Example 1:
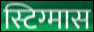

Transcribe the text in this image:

स्टिग्मास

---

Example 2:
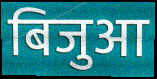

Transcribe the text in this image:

बिजुआ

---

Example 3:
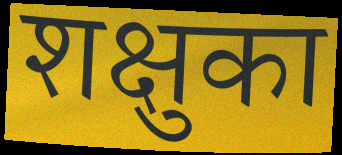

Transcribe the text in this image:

शक्षुका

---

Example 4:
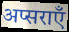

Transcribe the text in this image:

अप्सराएँ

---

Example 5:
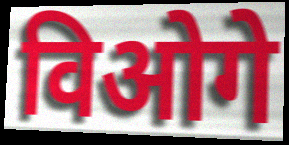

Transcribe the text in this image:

विओगे